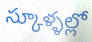
స్కూళ్ళల్లో